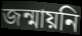
জন্মায়নি